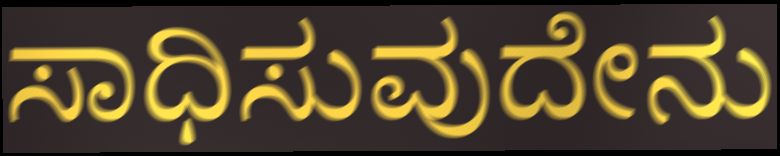
ಸಾಧಿಸುವುದೇನು